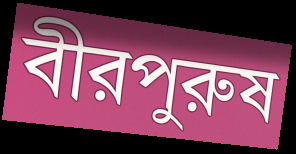
বীরপুরুষ